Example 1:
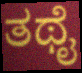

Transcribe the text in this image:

ತಥೈ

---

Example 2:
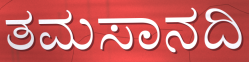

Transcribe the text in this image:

ತಮಸಾನದಿ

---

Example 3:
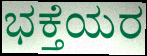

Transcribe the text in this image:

ಭಕ್ತೆಯರ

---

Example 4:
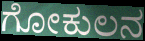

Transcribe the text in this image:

ಗೋಕುಲನ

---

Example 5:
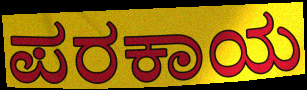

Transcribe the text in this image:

ಪರಕಾಯ